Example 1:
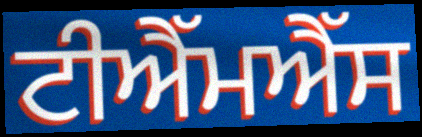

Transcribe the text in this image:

ਟੀਐੱਮਐੱਸ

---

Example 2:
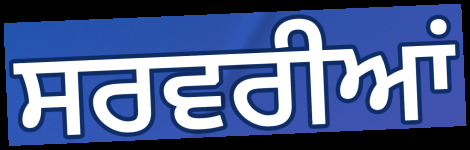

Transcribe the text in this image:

ਸਰਵਰੀਆਂ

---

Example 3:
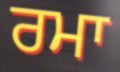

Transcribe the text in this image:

ਰਮਾ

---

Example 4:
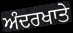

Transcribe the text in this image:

ਅੰਦਰਖਾਤੇ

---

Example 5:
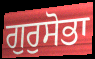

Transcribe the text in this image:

ਗੁਰੁਸੋਭਾ